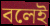
বলেই